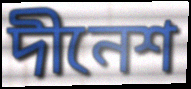
দীনেশ